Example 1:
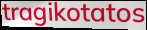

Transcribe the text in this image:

tragikotatos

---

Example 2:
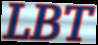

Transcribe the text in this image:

LBT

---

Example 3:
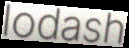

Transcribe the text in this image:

lodash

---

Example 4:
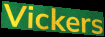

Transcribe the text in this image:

Vickers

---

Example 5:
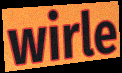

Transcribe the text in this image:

wirle